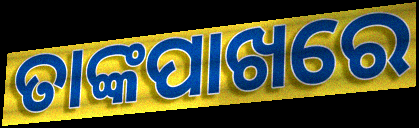
ତାଙ୍କପାଖରେ